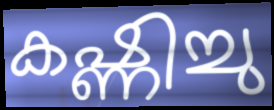
കഷ്ണിച്ചു